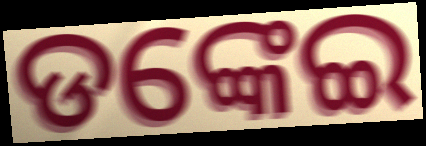
ଡଙ୍କେଇ